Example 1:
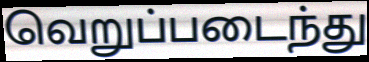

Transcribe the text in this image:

வெறுப்படைந்து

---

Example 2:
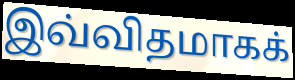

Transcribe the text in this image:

இவ்விதமாகக்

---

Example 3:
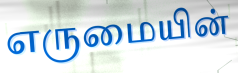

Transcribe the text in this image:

எருமையின்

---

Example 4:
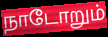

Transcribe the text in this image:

நாடோறும்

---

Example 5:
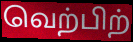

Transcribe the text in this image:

வெற்பிற்